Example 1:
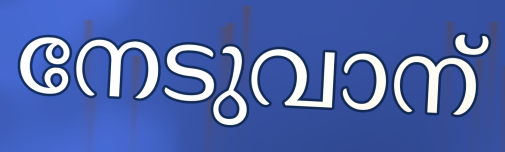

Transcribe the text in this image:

നേടുവാന്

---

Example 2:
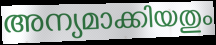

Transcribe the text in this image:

അന്യമാക്കിയതും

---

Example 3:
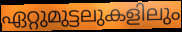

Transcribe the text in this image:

ഏറ്റുമുട്ടലുകളിലും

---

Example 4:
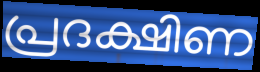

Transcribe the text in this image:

പ്രദക്ഷിണ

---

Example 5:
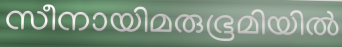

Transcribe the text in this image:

സീനായിമരുഭൂമിയിൽ